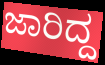
ಜಾರಿದ್ದ